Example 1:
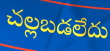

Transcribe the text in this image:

చల్లబడలేదు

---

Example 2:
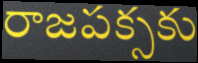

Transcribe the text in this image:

రాజపక్సకు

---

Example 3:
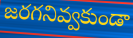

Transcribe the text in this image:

జరగనివ్వకుండా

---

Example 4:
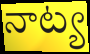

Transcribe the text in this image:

నాట్య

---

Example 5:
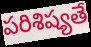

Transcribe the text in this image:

పరిశిష్యతే